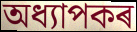
অধ্যাপকৰ